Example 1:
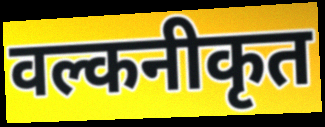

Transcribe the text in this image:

वल्कनीकृत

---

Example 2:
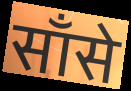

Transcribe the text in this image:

साँसे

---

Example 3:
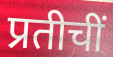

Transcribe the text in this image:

प्रतीचीं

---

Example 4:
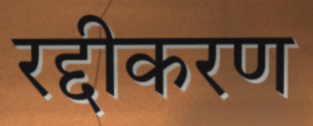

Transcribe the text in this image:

रद्दीकरण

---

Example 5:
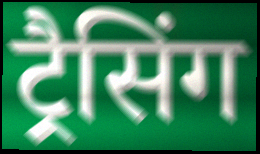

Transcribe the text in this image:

ट्रैसिंग